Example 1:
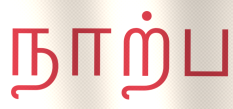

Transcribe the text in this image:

நாற்ப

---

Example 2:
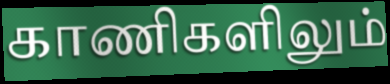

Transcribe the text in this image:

காணிகளிலும்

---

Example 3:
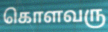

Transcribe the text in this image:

கொளவரு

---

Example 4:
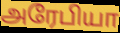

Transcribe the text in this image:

அரேபியா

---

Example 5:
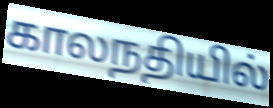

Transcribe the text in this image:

காலநதியில்